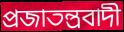
প্রজাতন্ত্রবাদী